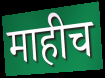
माहीच